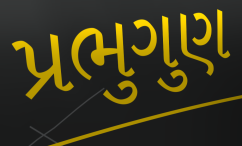
પ્રભુગુણ